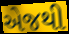
એજથી